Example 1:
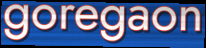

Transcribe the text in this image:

goregaon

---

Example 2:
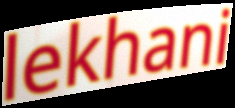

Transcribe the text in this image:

lekhani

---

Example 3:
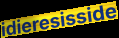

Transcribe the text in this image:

idieresisside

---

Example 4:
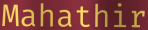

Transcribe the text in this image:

Mahathir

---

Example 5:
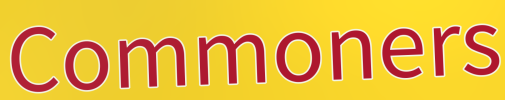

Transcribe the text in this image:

Commoners